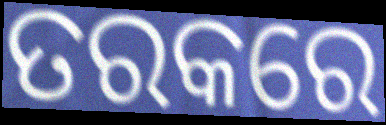
ତରକରେ